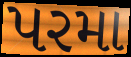
પરમા